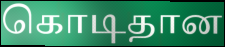
கொடிதான